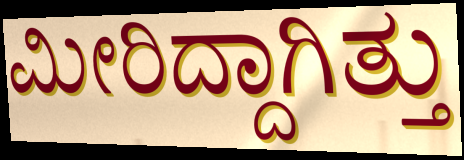
ಮೀರಿದ್ದಾಗಿತ್ತು